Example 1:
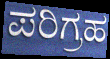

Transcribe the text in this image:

ಪರಿಗ್ರಹ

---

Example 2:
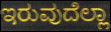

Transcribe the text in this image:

ಇರುವುದೆಲ್ಲಾ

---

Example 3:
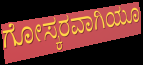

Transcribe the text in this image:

ಗೋಸ್ಕರವಾಗಿಯೂ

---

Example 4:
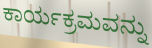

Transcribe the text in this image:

ಕಾರ್ಯಕ್ರಮವನ್ನು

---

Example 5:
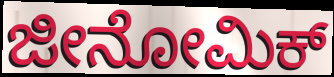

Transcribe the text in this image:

ಜೀನೋಮಿಕ್